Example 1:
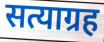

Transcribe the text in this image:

सत्याग्रह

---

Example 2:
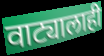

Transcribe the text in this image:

वाट्यालाही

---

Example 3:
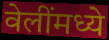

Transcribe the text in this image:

वेलींमध्ये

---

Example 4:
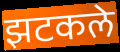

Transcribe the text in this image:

झटकले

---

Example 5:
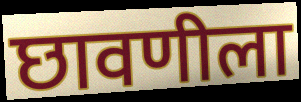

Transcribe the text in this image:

छावणीला